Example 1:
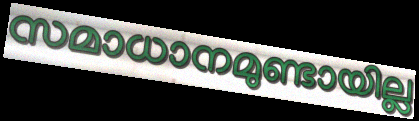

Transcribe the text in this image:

സമാധാനമുണ്ടായില്ല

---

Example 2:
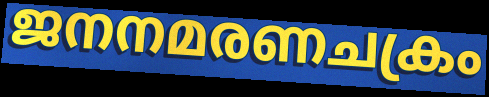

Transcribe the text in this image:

ജനനമരണചക്രം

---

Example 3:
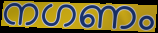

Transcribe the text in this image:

നഗണം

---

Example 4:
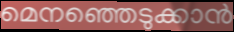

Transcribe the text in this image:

മെനഞ്ഞെടുക്കാൻ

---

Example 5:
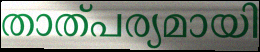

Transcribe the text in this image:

താത്പര്യമായി